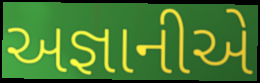
અજ્ઞાનીએ